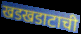
खडखडाटाची